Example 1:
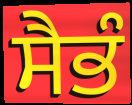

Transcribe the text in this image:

ਸੈਭੰ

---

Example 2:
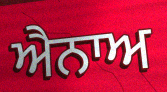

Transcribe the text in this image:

ਐਨਾਅ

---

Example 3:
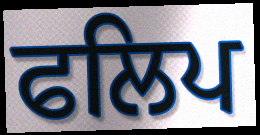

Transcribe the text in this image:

ਫਲਿਪ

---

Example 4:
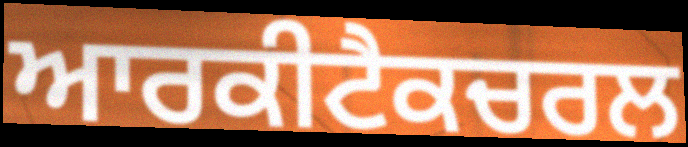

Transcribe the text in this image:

ਆਰਕੀਟੈਕਚਰਲ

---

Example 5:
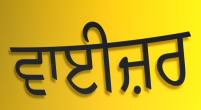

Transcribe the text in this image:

ਵਾਈਜ਼ਰ